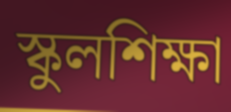
স্কুলশিক্ষা